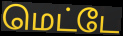
மெட்டே